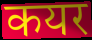
कयर